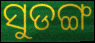
ସୁଡଙ୍ଗ